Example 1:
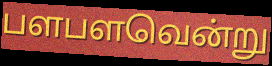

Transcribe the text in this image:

பளபளவென்று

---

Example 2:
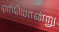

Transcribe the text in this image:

ஏரியொன்று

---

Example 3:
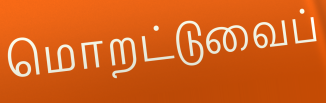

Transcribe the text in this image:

மொறட்டுவைப்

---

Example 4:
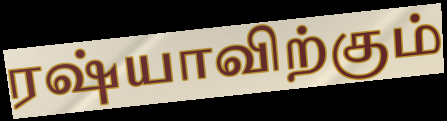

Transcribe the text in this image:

ரஷ்யாவிற்கும்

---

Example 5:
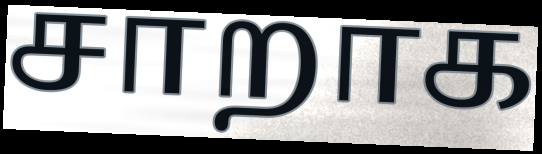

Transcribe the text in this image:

சாறாக